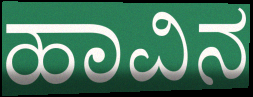
ಹಾವಿನ